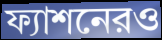
ফ্যাশনেরও